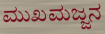
ಮುಖಮಜ್ಜನ